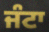
ਜੰਟਾ